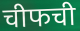
चीफची